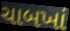
ચાબખાં